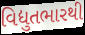
વિદ્યુતભારથી